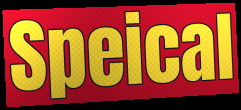
Speical